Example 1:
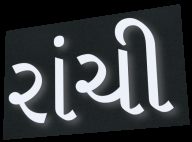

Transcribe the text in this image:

રાંચી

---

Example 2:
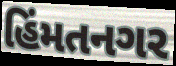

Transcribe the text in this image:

હિંમતનગર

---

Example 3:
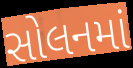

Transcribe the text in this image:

સોલનમાં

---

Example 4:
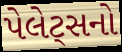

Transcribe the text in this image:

પેલેટ્સનો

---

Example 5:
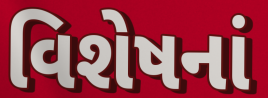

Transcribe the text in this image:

વિશેષનાં